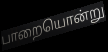
பாறையொன்று